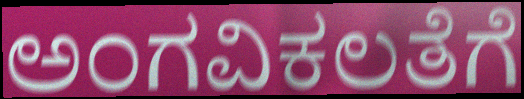
ಅಂಗವಿಕಲತೆಗೆ